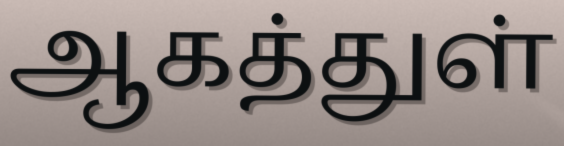
ஆகத்துள்